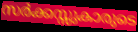
സർക്കസ്സുകാരുടെ